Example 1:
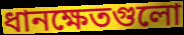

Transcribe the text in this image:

ধানক্ষেতগুলো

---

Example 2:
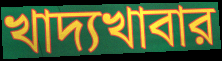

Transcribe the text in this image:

খাদ্যখাবার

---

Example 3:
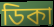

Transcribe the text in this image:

ডিকা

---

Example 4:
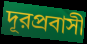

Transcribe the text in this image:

দূরপ্রবাসী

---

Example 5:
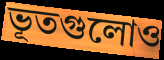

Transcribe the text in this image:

ভূতগুলোও